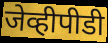
जेव्हीपीडी